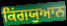
ਕਿਂਗਯੁਆਨ